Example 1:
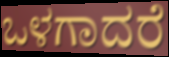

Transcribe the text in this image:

ಒಳಗಾದರೆ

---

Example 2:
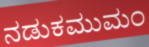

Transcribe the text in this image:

ನಡುಕಮುಮಂ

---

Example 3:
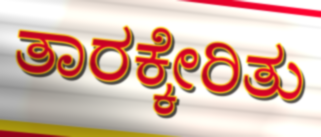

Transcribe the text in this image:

ತಾರಕ್ಕೇರಿತು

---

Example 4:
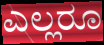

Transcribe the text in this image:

ಎಲ್ಲರೂ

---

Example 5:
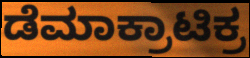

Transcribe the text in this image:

ಡೆಮಾಕ್ರಾಟಿಕ್ರ